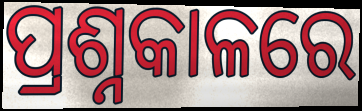
ପ୍ରଶ୍ନକାଳରେ